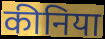
कीनिया